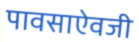
पावसाऐवजी